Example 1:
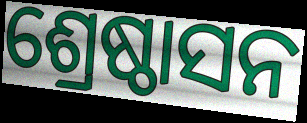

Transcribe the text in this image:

ଶ୍ରେଷ୍ଠାସନ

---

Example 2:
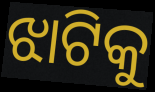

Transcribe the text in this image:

ଝାଟିକୁ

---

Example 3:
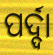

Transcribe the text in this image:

ପର୍ଦ୍ଦା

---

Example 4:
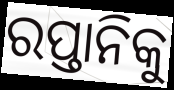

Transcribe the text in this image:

ରପ୍ତାନିକୁ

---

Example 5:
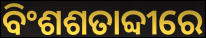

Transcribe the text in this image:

ବିଂଶଶତାବ୍ଦୀରେ